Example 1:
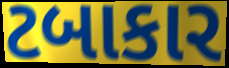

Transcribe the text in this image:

ટબાકાર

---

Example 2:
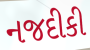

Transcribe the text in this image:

નજદીકી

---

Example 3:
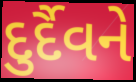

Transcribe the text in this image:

દુર્દૈવને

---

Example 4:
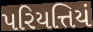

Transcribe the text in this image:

પરિયત્તિયં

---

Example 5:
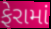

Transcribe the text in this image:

ફેરામાં